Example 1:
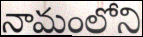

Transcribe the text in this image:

నామంలోని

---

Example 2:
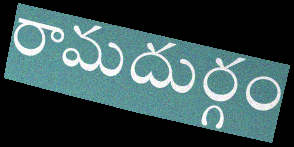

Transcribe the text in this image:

రామదుర్గం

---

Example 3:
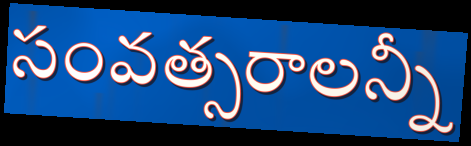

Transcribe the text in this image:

సంవత్సరాలన్నీ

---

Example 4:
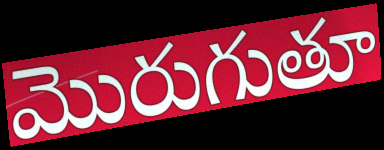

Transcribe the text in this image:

మొరుగుతూ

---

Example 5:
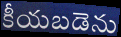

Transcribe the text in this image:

కీయబడెను